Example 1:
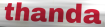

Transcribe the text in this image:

thanda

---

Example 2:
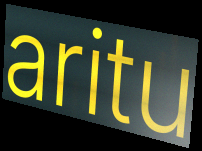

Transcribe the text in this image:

aritu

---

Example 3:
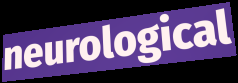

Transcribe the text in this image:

neurological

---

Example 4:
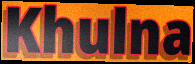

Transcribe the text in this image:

Khulna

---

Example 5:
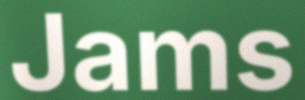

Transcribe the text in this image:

Jams